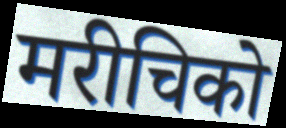
मरीचिको